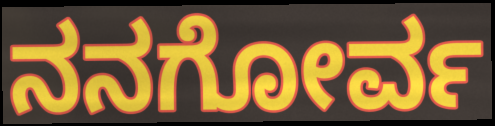
ನನಗೋರ್ವ